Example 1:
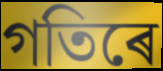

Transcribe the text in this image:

গতিৰে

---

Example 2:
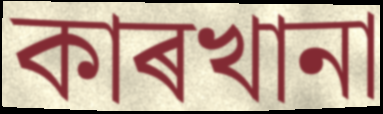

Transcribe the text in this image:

কাৰখানা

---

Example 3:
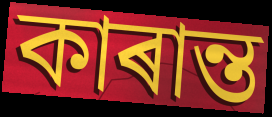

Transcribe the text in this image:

কাৰান্ত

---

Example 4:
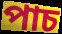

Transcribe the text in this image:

পাচ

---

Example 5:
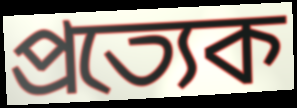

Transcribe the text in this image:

প্ৰত্যেক